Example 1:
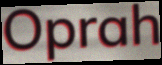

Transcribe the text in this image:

Oprah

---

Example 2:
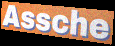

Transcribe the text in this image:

Assche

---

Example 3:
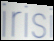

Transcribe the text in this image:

irisi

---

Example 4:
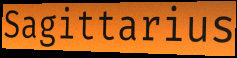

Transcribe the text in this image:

Sagittarius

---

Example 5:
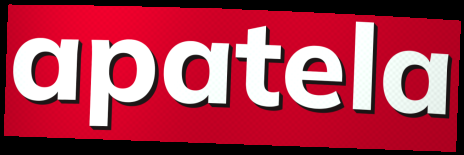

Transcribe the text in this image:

apatela